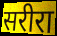
सरीरा